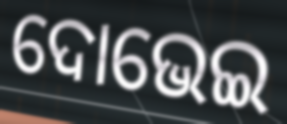
ଦୋଭେଇ